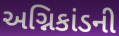
અગ્નિકાંડની